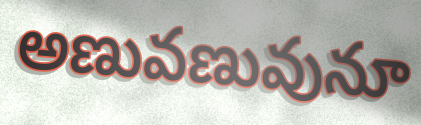
అణువణువునూ